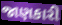
જાણકારી